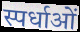
स्‍पर्धाओं